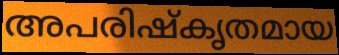
അപരിഷ്കൃതമായ